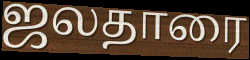
ஜலதாரை